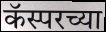
कॅस्परच्या